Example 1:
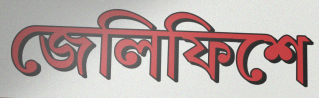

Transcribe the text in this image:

জেলিফিশে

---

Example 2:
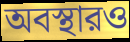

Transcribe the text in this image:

অবস্থারও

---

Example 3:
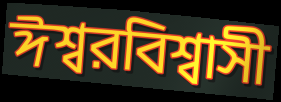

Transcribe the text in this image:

ঈশ্বরবিশ্বাসী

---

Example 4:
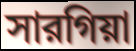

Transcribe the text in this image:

সারগিয়া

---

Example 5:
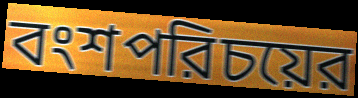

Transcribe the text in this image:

বংশপরিচয়ের